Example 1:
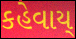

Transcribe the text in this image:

કહેવાય્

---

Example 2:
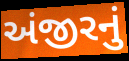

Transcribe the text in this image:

અંજીરનું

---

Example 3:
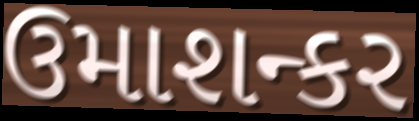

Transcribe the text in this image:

ઉમાશન્કર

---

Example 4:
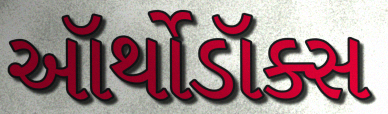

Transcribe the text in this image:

ઑર્થોડૉક્સ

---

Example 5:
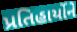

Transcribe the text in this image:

પ્રતિહાર્યોને